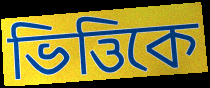
ভিত্তিকে